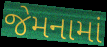
જેમનામાં